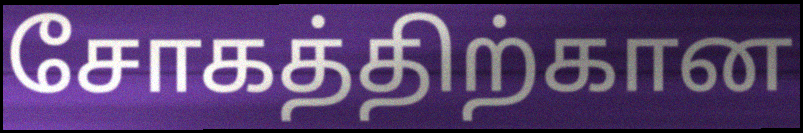
சோகத்திற்கான